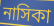
নাসিকা